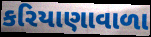
કરિયાણાવાળા